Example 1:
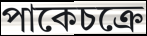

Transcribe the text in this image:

পাকেচক্রে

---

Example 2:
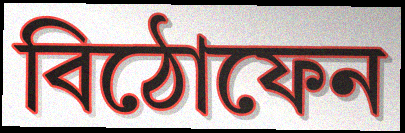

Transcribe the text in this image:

বিঠোফেন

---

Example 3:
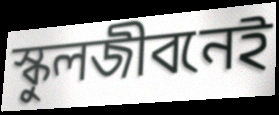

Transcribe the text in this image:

স্কুলজীবনেই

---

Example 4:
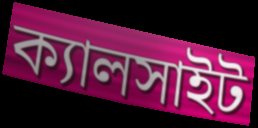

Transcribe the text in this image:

ক্যালসাইট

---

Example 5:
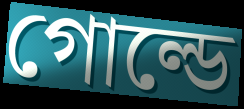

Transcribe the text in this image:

গোল্ডে